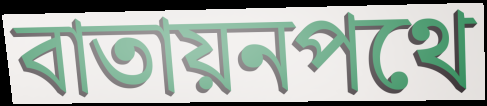
বাতায়নপথে